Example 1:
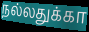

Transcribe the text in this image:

நல்லதுக்கா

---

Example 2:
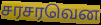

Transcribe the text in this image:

சரசரவென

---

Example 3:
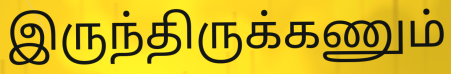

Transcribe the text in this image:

இருந்திருக்கணும்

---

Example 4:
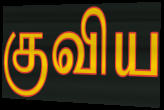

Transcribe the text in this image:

குவிய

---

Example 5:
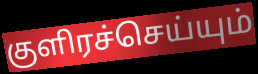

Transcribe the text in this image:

குளிரச்செய்யும்